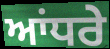
ਆਂਧਰੇ